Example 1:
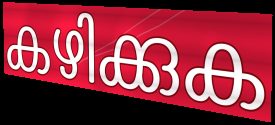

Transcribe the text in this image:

കഴിക്കുക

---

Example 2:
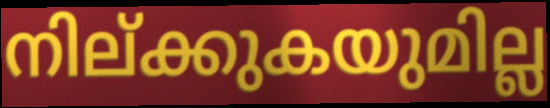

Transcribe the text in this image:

നില്ക്കുകയുമില്ല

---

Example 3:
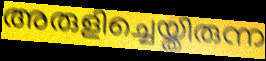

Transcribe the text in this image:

അരുളിച്ചെയ്തിരുന്ന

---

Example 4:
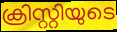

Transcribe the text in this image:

ക്രിസ്റ്റിയുടെ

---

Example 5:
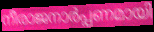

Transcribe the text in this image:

നീരാജനാർപ്പണമായി